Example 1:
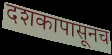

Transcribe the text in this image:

दशकापासूनच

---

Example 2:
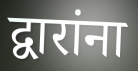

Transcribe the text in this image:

द्वारांना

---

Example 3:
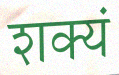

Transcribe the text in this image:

शक्यं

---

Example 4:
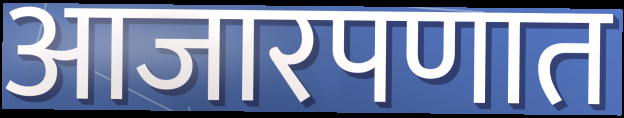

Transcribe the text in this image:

आजारपणात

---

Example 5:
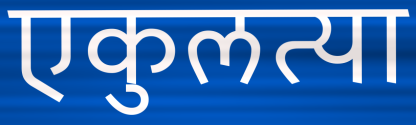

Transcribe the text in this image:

एकुलत्या